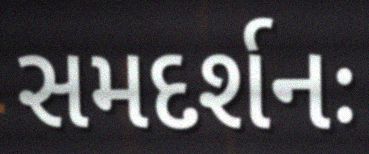
સમદર્શનઃ